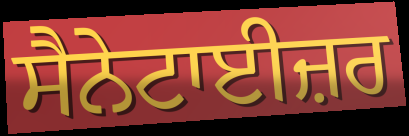
ਸੈਨੇਟਾਈਜ਼ਰ